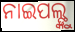
ନାଇପଲ୍ଙ୍କୁ